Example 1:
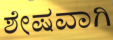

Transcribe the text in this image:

ಶೇಷವಾಗಿ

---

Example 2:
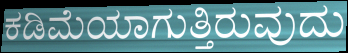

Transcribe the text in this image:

ಕಡಿಮೆಯಾಗುತ್ತಿರುವುದು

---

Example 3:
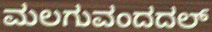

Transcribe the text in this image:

ಮಲಗುವಂದದಲ್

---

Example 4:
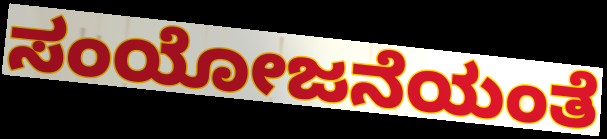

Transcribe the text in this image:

ಸಂಯೋಜನೆಯಂತೆ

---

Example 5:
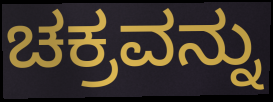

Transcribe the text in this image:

ಚಕ್ರವನ್ನು